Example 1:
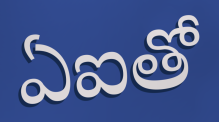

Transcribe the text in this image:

ఏఐతో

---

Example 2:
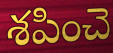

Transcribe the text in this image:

శపించె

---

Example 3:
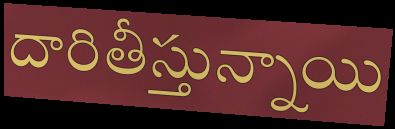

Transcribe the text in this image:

దారితీస్తున్నాయి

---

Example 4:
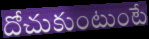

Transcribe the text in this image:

దోచుకుంటుంటే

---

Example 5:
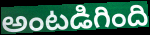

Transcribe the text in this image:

అంటడిగింది